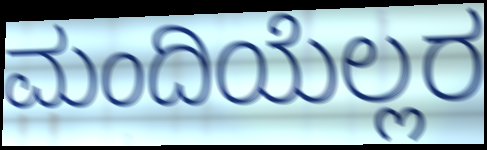
ಮಂದಿಯೆಲ್ಲರ